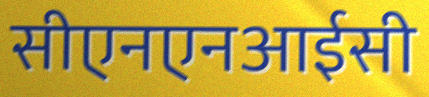
सीएनएनआईसी